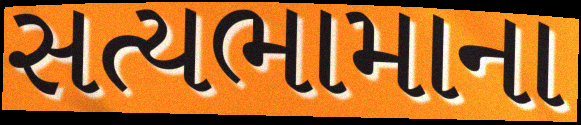
સત્યભામાના